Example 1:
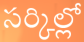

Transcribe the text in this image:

సర్కిల్లో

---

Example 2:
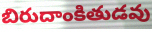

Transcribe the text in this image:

బిరుదాంకితుడవు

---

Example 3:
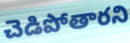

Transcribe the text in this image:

చెడిపోతారని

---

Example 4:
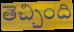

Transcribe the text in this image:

తెచ్చింది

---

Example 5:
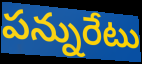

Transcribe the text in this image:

పన్నురేటు